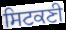
ਸਿਟਕਣੀ